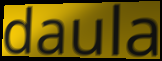
daula